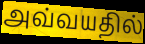
அவ்வயதில்